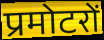
प्रमोटरों